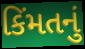
કિંમતનું